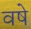
वषे